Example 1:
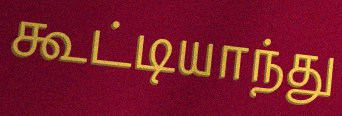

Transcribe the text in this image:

கூட்டியாந்து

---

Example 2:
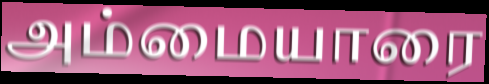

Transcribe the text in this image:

அம்மையாரை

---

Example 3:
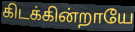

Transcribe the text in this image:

கிடக்கின்றாயே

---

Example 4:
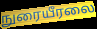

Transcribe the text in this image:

நுரையீரலை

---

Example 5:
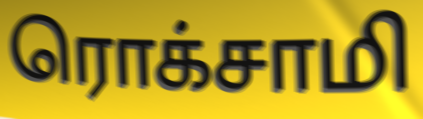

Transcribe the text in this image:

ரொக்சாமி